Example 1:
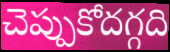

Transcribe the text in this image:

చెప్పుకోదగ్గది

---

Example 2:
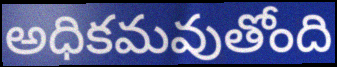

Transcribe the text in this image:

అధికమవుతోంది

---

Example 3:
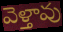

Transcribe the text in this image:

వెళ్తావు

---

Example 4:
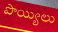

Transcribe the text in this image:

పొయ్యిలు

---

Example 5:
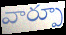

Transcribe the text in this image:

వార్పూ